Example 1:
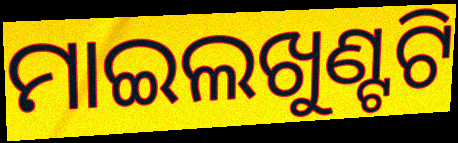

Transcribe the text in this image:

ମାଇଲଖୁଣ୍ଟଟି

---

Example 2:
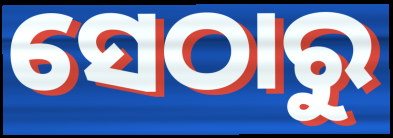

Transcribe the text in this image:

ସେଠାରୁ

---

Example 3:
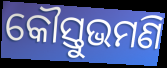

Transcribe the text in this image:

କୌସ୍ତୁଭମଣି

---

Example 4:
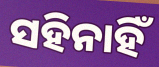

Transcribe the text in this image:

ସହିନାହିଁ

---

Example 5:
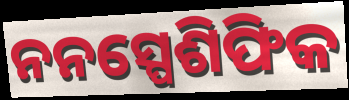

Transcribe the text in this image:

ନନସ୍ପେଶିଫିକ